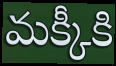
మక్కీకి